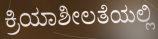
ಕ್ರಿಯಾಶೀಲತೆಯಲ್ಲಿ